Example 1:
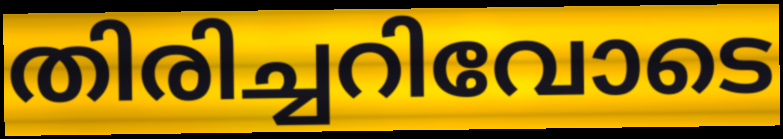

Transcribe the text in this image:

തിരിച്ചറിവോടെ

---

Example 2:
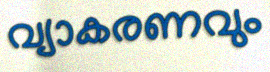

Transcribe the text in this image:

വ്യാകരണവും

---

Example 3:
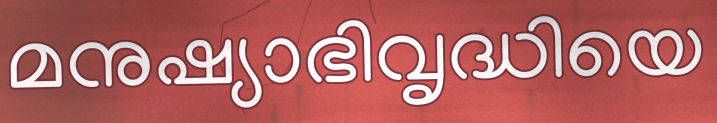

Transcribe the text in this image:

മനുഷ്യാഭിവൃദ്ധിയെ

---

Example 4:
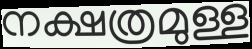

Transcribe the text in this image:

നക്ഷത്രമുള്ള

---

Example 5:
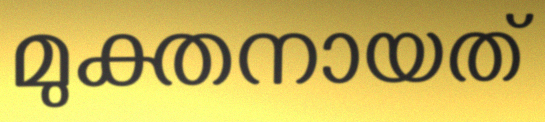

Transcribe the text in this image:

മുക്തനായത്